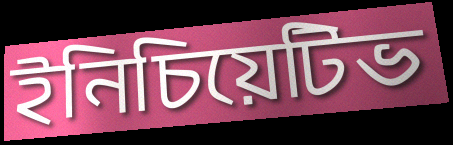
ইনিচিয়েটিভ